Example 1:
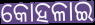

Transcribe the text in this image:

କୋହଳାଇ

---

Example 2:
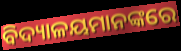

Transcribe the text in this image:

ବିଦ୍ୟାଳୟମାନଙ୍କରେ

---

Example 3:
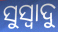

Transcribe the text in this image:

ସୁସ୍ୱାଦୁ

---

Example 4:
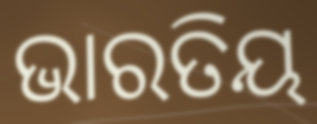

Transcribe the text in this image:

ଭାରତିୟ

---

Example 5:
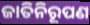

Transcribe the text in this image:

ଜାତିନିରୂପଣ